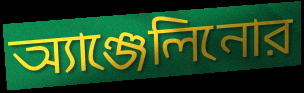
অ্যাঞ্জেলিনোর